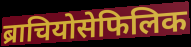
ब्राचियोसेफिलिक